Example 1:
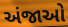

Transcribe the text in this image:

અંજાઓ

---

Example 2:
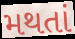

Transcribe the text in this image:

મથતાં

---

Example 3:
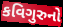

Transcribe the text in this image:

કવિગુરુનો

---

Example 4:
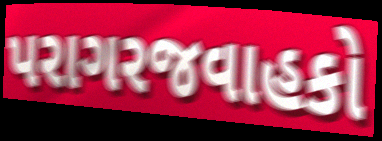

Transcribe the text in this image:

પરાગરજવાહકો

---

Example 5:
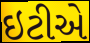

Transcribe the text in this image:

ઇટીએ